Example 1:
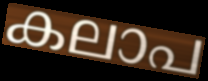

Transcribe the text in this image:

കലാപ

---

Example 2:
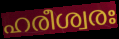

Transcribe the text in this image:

ഹരീശ്വരഃ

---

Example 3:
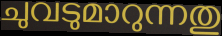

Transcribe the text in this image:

ചുവടുമാറുന്നതു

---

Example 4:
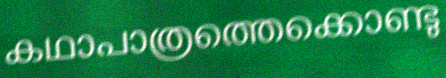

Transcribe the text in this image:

കഥാപാത്രത്തെക്കൊണ്ടു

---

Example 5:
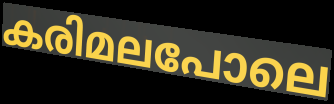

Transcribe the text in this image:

കരിമലപോലെ